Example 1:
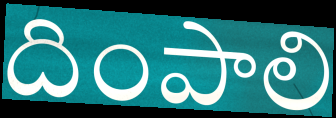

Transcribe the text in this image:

దింపాలి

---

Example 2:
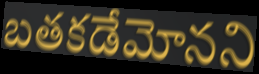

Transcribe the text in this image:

బతకడేమోనని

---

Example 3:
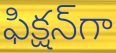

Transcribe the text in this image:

ఫిక్షన్‌గా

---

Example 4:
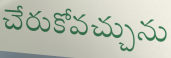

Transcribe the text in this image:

చేరుకోవచ్చును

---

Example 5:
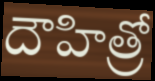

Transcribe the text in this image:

దౌహిత్రో